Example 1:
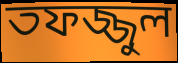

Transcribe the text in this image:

তফজ্জুল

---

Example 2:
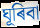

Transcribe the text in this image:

ঘূৰিবা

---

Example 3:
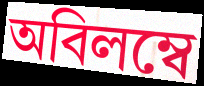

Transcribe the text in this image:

অবিলম্বে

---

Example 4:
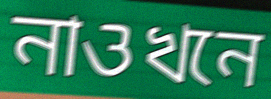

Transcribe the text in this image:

নাওখনে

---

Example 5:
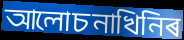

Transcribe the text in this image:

আলোচনাখিনিৰ